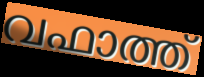
വഫാത്ത്